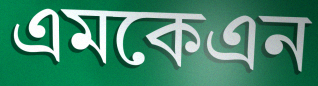
এমকেএন